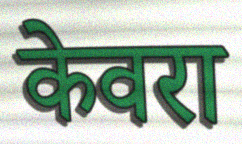
केवरा